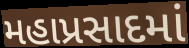
મહાપ્રસાદમાં